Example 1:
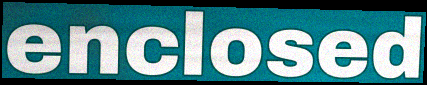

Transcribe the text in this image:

enclosed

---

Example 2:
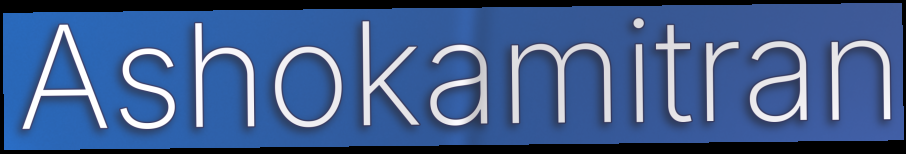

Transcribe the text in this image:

Ashokamitran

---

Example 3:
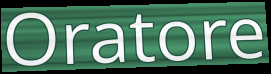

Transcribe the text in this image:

Oratore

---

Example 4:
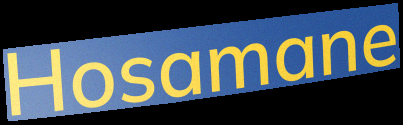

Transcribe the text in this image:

Hosamane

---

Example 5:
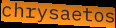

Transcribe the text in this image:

chrysaetos